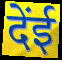
देंई